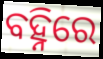
ବହ୍ନିରେ